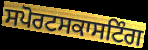
ਸਪੋਰਟਸਕਾਸਟਿੰਗ